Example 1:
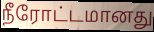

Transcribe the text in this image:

நீரோட்டமானது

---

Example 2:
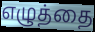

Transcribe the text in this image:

எழுத்தை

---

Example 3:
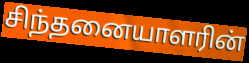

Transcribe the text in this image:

சிந்தனையாளரின்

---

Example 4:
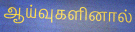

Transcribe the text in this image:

ஆய்வுகளினால்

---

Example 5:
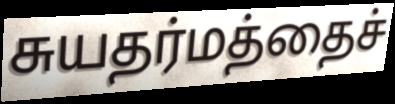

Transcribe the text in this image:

சுயதர்மத்தைச்